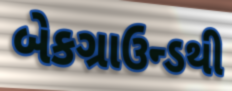
બેકગ્રાઉન્ડથી